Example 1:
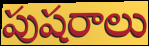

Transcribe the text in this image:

పుషరాలు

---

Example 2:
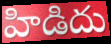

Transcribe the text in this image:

హిడిదు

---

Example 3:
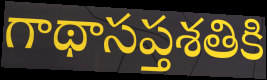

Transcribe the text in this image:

గాథాసప్తశతికి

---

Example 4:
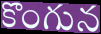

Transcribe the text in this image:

కొంగున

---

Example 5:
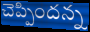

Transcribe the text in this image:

చెప్పిందన్న